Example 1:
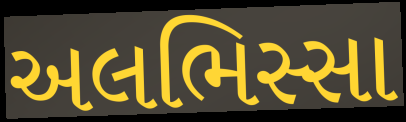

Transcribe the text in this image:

અલભિસ્સા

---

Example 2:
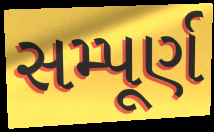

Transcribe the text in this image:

સમ્પૂર્ણ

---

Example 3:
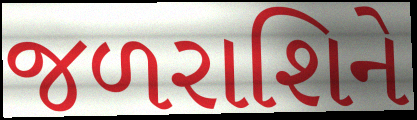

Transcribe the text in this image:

જળરાશિને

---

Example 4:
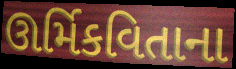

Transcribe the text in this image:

ઊર્મિકવિતાના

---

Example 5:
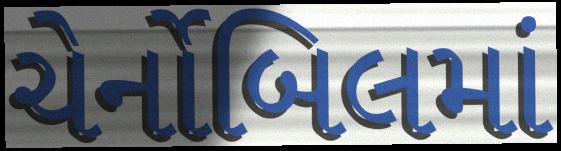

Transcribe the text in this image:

ચેર્નોબિલમાં